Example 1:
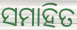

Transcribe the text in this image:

ସମାହିତ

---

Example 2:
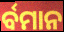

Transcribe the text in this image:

ର୍ବମାନ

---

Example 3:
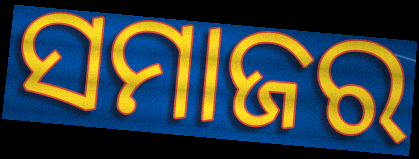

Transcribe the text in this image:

ସମାଜର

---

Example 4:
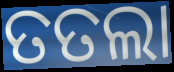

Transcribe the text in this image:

ତତଲା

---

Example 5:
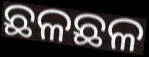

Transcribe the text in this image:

ଛଳଛଳ